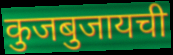
कुजबुजायची